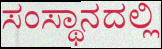
ಸಂಸ್ಥಾನದಲ್ಲಿ